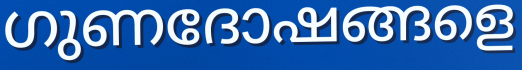
ഗുണദോഷങ്ങളെ